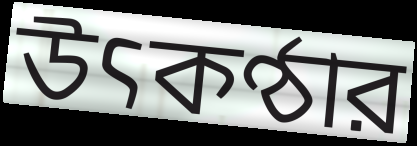
উৎকণ্ঠার